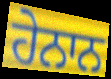
ਹੇਨਾਨ